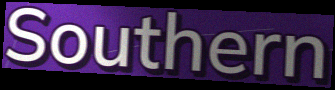
Southern